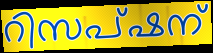
റിസപ്ഷന്